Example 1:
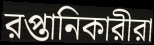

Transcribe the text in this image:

রপ্তানিকারীরা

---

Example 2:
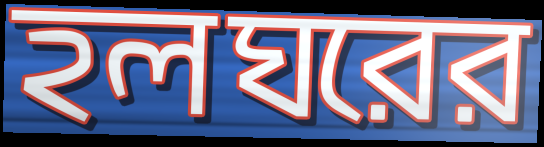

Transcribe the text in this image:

হলঘরের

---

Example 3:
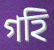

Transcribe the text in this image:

গহি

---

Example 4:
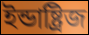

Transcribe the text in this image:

ইন্ডাষ্ট্রিজ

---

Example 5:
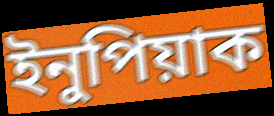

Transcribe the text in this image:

ইনুপিয়াক